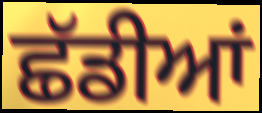
ਛੱਡੀਆਂ